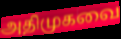
அதிமுகவை